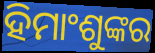
ହିମାଂଶୁଙ୍କର